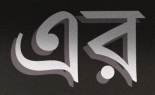
এর